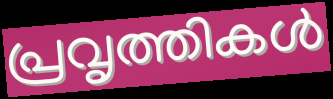
പ്രവൃത്തികൾ